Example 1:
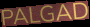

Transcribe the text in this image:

PALGAD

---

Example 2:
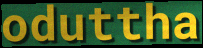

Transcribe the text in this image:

oduttha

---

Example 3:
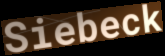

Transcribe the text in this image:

Siebeck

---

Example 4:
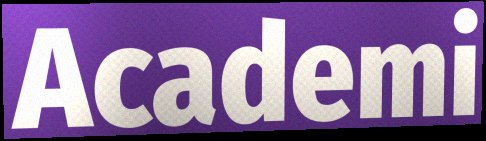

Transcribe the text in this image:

Academi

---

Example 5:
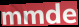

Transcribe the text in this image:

mmde